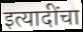
इत्यादींचा